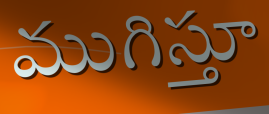
ముగిస్తూ